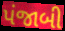
પંજાબી